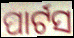
ପାର୍ଟସ